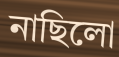
নাছিলো